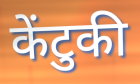
केंटुकी